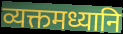
व्यक्तमध्यानि